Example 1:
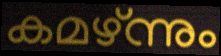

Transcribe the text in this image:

കമഴ്ന്നും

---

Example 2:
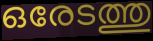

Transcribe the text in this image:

ഒരേടത്തു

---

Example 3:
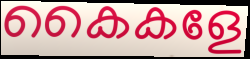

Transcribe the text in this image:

കൈകളേ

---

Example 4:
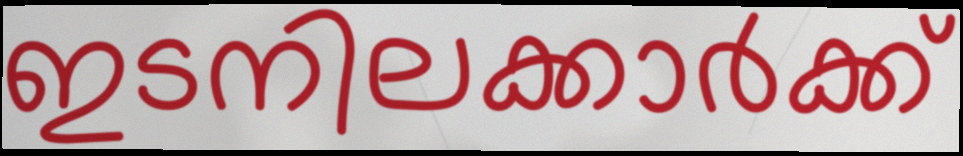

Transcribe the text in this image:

ഇടനിലക്കാർക്ക്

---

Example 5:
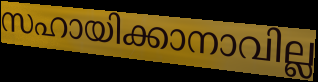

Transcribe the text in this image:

സഹായിക്കാനാവില്ല